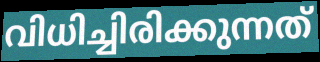
വിധിച്ചിരിക്കുന്നത്